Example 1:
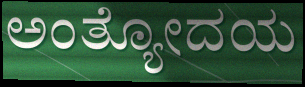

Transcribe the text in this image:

ಅಂತ್ಯೋದಯ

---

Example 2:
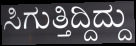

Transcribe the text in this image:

ಸಿಗುತ್ತಿದ್ದಿದ್ದು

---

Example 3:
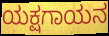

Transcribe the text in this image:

ಯಕ್ಷಗಾಯನ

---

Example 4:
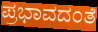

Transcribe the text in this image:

ಪ್ರಭಾವದಂತೆ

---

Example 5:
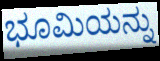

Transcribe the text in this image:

ಭೂಮಿಯನ್ನು